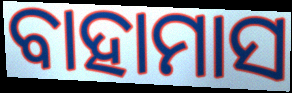
ବାହାମାସ